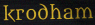
krodham